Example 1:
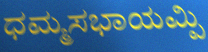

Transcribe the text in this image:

ಧಮ್ಮಸಭಾಯಮ್ಪಿ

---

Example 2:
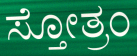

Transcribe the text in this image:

ಸ್ತೋತ್ರಂ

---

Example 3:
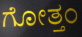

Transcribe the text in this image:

ಗೋತ್ತಂ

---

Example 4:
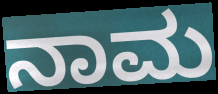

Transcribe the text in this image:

ನಾಮ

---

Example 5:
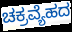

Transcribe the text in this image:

ಚಕ್ರವ್ಯೆಹದ